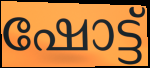
ഷോട്ട്